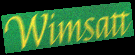
Wimsatt